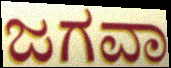
ಜಗವಾ